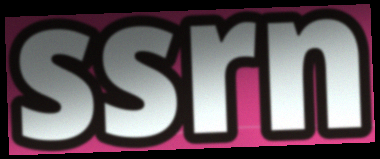
ssrn